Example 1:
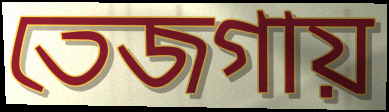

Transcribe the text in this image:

তেজগায়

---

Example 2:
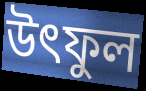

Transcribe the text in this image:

উৎফুল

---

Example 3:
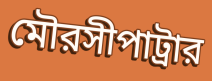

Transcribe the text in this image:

মৌরসীপাট্রার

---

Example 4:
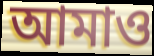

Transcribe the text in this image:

আমাও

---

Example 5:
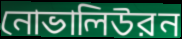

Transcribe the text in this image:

নোভালিউরন